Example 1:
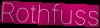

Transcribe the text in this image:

Rothfuss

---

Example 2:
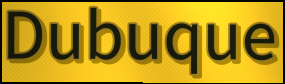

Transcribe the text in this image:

Dubuque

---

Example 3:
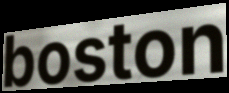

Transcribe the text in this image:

boston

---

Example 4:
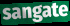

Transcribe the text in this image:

sangate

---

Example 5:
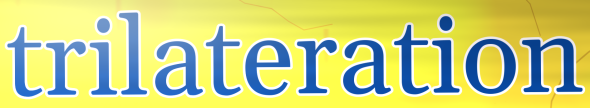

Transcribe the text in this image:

trilateration